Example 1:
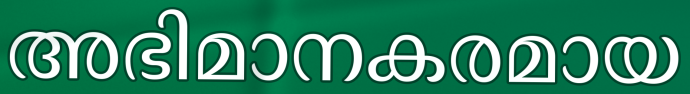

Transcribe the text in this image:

അഭിമാനകരമായ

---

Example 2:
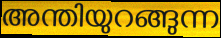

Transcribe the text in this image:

അന്തിയുറങ്ങുന്ന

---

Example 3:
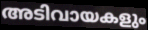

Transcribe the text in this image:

അടിവായകളും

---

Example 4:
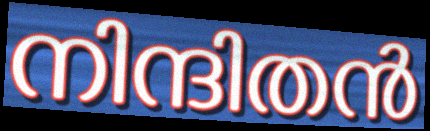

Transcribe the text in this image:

നിന്ദിതൻ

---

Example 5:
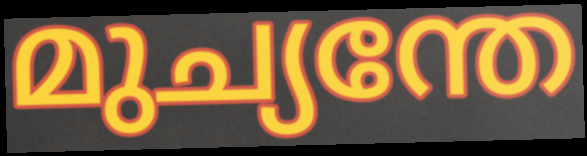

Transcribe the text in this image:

മുച്യന്തേ